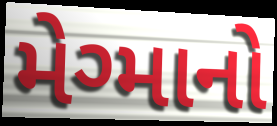
મેગ્માનો